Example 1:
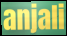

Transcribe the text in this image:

anjali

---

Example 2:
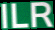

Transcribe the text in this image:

ILR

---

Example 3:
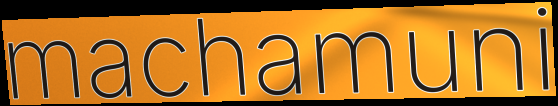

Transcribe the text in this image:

machamuni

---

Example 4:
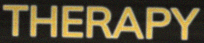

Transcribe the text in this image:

THERAPY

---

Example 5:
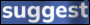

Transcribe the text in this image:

suggest